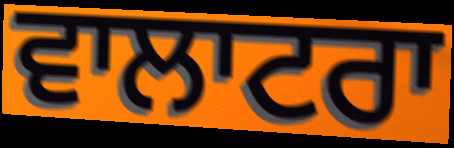
ਵਾਲਾਟਰਾ